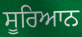
ਸੂਰਿਆਨ